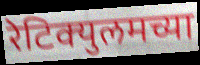
रेटिक्युलमच्या